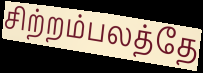
சிற்றம்பலத்தே